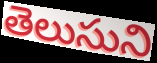
తెలుసుని